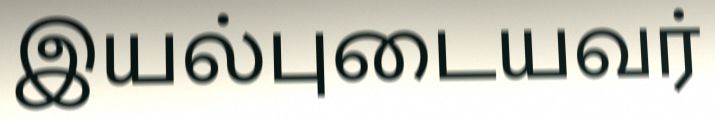
இயல்புடையவர்